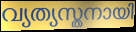
വ്യത്യസ്തനായി